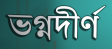
ভগ্নদীর্ণ